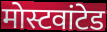
मोस्टवांटेड